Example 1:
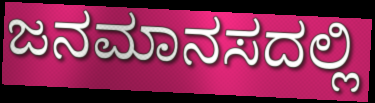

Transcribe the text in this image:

ಜನಮಾನಸದಲ್ಲಿ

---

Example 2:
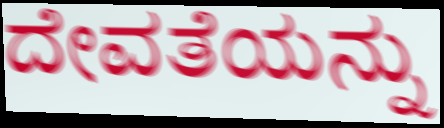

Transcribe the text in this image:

ದೇವತೆಯನ್ನು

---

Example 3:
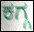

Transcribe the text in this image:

ಕಗ್ಗ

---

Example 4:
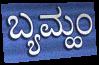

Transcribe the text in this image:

ಬ್ಯಮ್ಹಂ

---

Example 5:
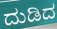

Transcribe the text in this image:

ದುಡಿದ